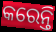
କରେନ୍ତି